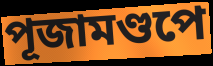
পূজামণ্ডপে